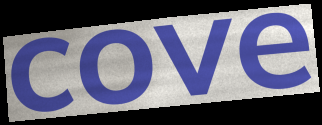
cove